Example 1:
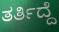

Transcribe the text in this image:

ತರ್ತಿದ್ದೆ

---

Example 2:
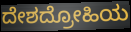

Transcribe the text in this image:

ದೇಶದ್ರೋಹಿಯ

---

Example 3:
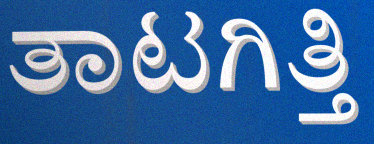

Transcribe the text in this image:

ತಾಟಗಿತ್ತಿ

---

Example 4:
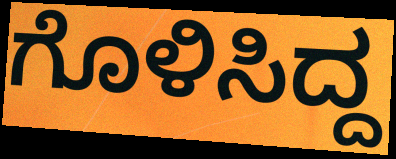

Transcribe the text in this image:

ಗೊಳಿಸಿದ್ದ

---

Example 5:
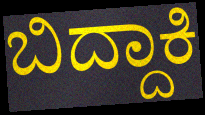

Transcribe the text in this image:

ಬಿದ್ದಾಕಿ